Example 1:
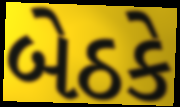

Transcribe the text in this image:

બેઠકે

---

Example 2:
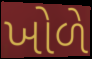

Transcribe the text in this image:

ખોળે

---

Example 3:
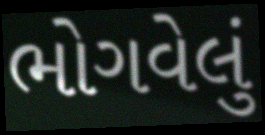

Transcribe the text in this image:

ભોગવેલું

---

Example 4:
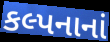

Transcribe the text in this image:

કલ્પનાનાં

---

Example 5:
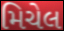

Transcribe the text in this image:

મિચેલ